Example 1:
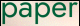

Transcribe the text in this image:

paper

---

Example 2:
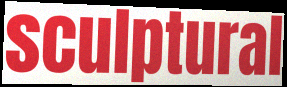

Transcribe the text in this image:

sculptural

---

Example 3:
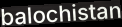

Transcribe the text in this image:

balochistan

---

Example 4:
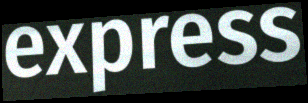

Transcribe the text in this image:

express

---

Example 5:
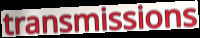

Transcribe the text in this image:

transmissions